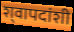
श्वापदांशी